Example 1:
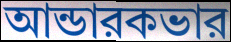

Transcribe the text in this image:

আন্ডারকভার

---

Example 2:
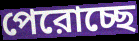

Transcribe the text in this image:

পেরোচ্ছে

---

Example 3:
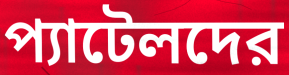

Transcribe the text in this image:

প্যাটেলদের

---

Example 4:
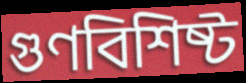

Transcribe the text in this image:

গুণবিশিষ্ট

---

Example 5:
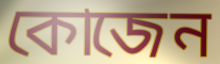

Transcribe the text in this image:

কোজেন